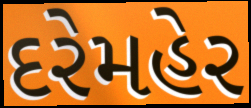
દરેમહેર